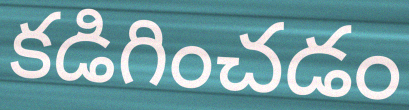
కడిగించడం